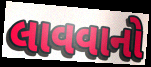
લાવવાનો